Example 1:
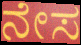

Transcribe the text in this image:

ನೇಸ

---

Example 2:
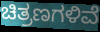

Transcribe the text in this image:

ಚಿತ್ರಣಗಳಿವೆ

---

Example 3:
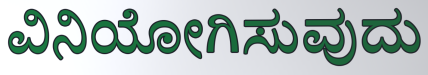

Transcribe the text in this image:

ವಿನಿಯೋಗಿಸುವುದು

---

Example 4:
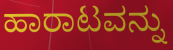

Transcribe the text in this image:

ಹಾರಾಟವನ್ನು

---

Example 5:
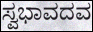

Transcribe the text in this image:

ಸ್ವಭಾವದವ